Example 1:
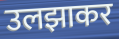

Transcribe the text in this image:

उलझाकर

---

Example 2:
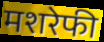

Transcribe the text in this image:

मशरेफी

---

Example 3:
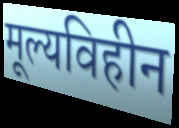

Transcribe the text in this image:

मूल्यविहीन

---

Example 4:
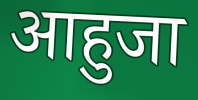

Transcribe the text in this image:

आहुजा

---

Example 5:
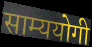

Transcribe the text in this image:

साम्ययोगी